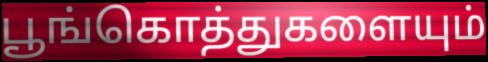
பூங்கொத்துகளையும்